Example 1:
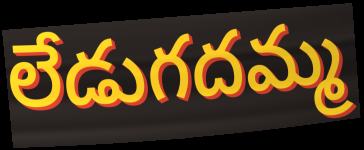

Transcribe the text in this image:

లేడుగదమ్మ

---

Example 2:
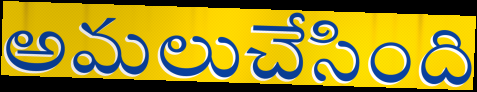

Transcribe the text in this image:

అమలుచేసింది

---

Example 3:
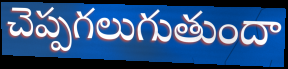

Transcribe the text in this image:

చెప్పగలుగుతుందా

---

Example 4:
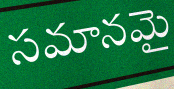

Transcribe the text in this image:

సమానమై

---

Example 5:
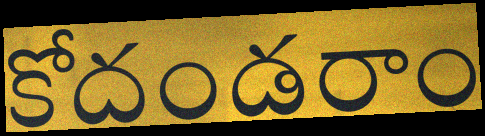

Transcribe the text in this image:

కోదండరాం